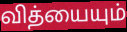
வித்யையும்